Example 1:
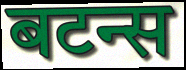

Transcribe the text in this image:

बटन्स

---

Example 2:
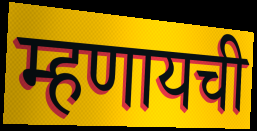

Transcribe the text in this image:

म्हणायची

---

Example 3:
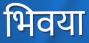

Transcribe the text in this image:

भिवया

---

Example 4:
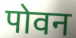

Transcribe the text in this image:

पोवन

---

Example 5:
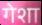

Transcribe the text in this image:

गेशा